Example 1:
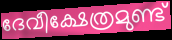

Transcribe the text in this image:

ദേവീക്ഷേത്രമുണ്ട്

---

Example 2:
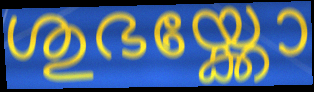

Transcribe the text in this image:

ശുഭയ്ക്കോ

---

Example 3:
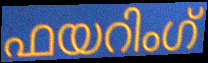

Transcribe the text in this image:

ഫയറിംഗ്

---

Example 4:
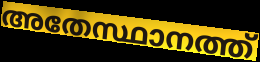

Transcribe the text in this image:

അതേസ്ഥാനത്ത്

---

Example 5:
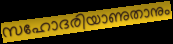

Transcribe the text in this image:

സഹോദരിയാണുതാനും